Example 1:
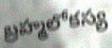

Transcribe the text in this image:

బ్రహ్మలోకస్య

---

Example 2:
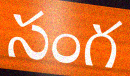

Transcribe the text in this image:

సంగ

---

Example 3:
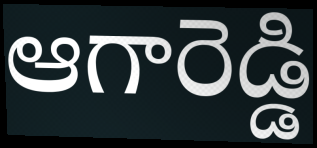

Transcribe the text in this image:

ఆగారెడ్డి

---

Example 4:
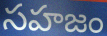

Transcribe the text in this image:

సహజం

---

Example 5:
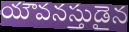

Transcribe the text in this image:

యౌవనస్తుడైన